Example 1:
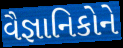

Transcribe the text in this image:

વૈજ્ઞાનિકોને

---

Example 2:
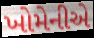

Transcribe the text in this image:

ખોમેનીએ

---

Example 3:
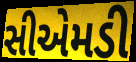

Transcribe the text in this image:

સીએમડી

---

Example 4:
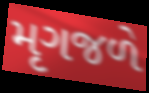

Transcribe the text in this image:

મૃગજળે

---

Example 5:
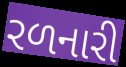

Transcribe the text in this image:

રળનારી